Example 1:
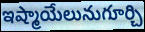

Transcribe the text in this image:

ఇష్మాయేలునుగూర్చి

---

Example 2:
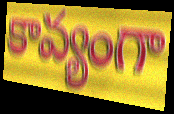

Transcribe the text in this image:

కావ్యంగా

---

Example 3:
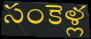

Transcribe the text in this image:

సంకెళ్ల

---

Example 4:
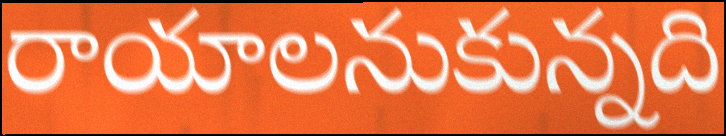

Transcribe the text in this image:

రాయాలనుకున్నది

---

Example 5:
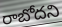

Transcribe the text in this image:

రాబోదని